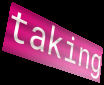
taking